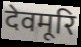
देवमूरि